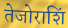
तेजोराशिं